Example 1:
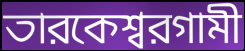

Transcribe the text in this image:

তারকেশ্বরগামী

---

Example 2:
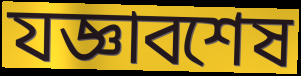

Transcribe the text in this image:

যজ্ঞাবশেষ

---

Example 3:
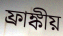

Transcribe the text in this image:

ফ্রাঙ্কীয়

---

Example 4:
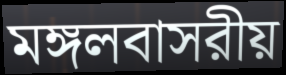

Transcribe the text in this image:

মঙ্গলবাসরীয়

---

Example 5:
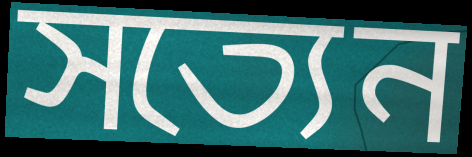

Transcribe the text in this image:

সত্যেন